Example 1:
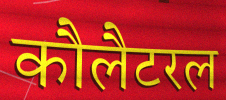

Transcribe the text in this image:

कौलैटरल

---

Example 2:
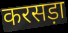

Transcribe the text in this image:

करसड़ा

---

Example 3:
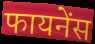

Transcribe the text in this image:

फायनेंस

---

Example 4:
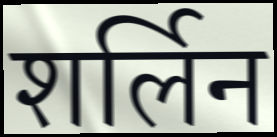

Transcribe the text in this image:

शर्लिन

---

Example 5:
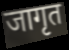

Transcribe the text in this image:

जागृत